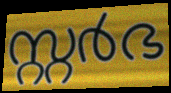
സ്റ്റർഭ